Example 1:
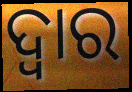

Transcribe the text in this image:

ଦ୍ବାର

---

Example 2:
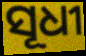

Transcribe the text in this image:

ସୂଧୀ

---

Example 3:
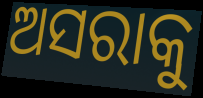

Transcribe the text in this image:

ଅସରାକୁ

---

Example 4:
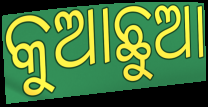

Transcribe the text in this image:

କୁଆଛୁଆ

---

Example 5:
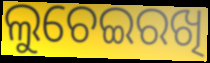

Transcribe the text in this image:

ଲୁଚେଇରଖି